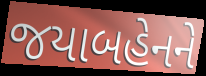
જયાબહેનને